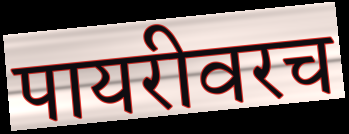
पायरीवरच